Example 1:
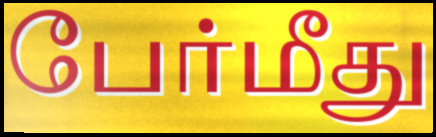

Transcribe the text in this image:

பேர்மீது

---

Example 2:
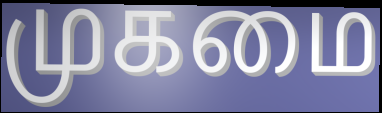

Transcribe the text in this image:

முகமை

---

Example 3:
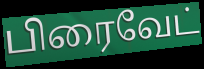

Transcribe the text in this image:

பிரைவேட்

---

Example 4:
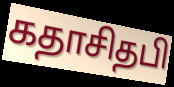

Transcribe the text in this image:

கதாசிதபி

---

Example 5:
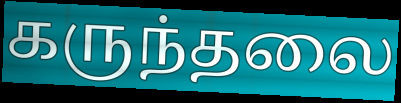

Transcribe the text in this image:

கருந்தலை